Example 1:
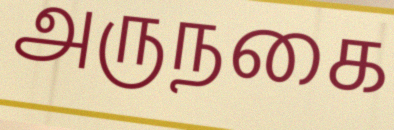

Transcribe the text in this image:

அருநகை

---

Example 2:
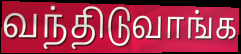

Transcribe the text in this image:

வந்திடுவாங்க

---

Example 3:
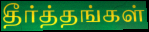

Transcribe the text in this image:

தீர்த்தங்கள்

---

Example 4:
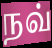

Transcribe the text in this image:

நவ்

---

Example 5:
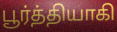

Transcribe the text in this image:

பூர்த்தியாகி